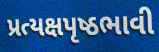
પ્રત્યક્ષપૃષ્ઠભાવી